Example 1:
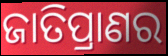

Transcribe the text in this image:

ଜାତିପ୍ରାଣର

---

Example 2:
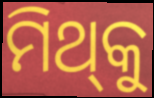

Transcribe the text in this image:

ମିଥ୍‍କୁ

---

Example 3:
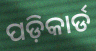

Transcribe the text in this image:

ପଡ଼ିକାର୍ଡ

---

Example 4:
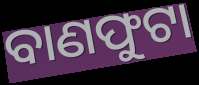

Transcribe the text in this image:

ବାଣଫୁଟା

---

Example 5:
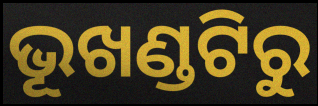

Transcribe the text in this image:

ଭୂଖଣ୍ଡଟିରୁ